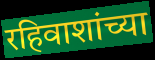
रहिवाशांच्या